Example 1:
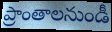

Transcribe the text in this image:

ప్రాంతాలనుండీ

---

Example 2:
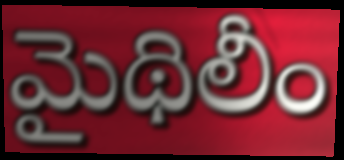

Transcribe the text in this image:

మైథిలీం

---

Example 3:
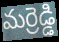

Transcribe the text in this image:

మర్రెడ్డి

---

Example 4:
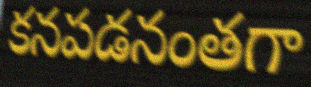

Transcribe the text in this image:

కనపడనంతగా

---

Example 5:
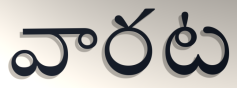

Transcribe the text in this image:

వారట